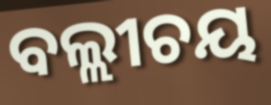
ବଲ୍ଲୀଚୟ